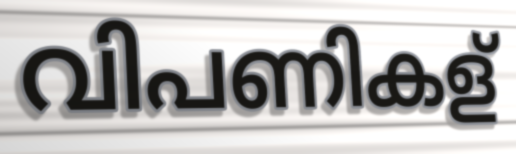
വിപണികള്